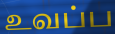
உவப்ப